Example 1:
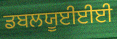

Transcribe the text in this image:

ਡਬਲਯੂਈਈਈ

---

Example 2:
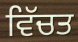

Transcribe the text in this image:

ਵਿੱਚਤ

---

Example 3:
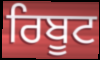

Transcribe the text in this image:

ਰਿਬੂਟ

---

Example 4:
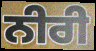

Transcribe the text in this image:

ਨੀਰੀ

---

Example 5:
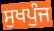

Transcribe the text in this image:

ਸੁਖਪੁੰਜ